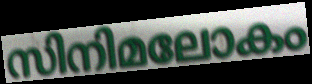
സിനിമലോകം